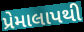
પ્રેમાલાપથી